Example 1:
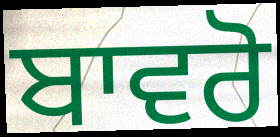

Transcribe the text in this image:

ਬਾਵਰੋ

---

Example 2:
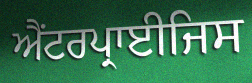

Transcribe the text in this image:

ਐਂਟਰਪ੍ਰਾਈਜਿਸ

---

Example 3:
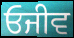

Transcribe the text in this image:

ਓਜੀਵ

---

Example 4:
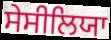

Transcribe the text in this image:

ਸੇਸੀਲਿਯਾ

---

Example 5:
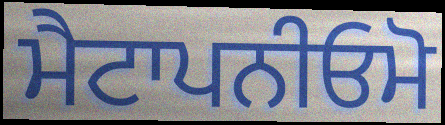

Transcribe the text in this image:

ਮੈਟਾਪਨੀਓਮੋ